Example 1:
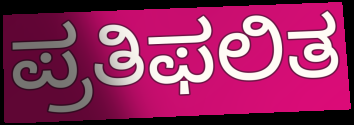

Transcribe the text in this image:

ಪ್ರತಿಫಲಿತ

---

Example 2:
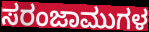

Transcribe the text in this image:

ಸರಂಜಾಮುಗಳ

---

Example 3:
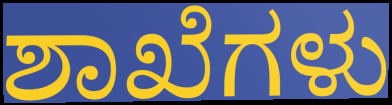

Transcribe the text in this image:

ಶಾಖೆಗಳು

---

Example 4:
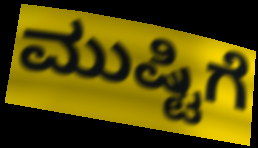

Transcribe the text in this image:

ಮುಷ್ಟಿಗೆ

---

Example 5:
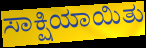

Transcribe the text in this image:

ಸಾಕ್ಷಿಯಾಯಿತು